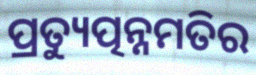
ପ୍ରତ୍ୟୁତ୍ପନ୍ନମତିର